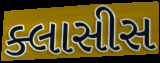
ક્લાસીસ